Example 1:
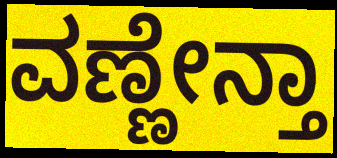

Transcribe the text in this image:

ವಣ್ಣೇನ್ತಾ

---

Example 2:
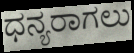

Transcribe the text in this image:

ಧನ್ಯರಾಗಲು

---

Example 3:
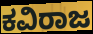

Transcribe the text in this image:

ಕವಿರಾಜ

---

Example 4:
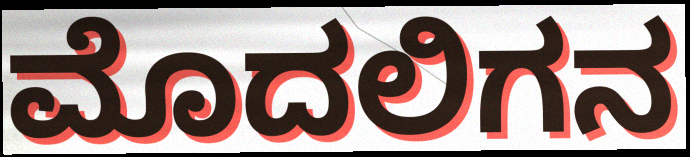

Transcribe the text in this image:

ಮೊದಲಿಗನ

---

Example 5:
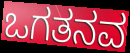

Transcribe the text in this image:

ಒಗತನವ